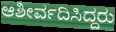
ಆಶೀರ್ವದಿಸಿದ್ದರು